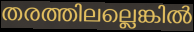
തരത്തിലല്ലെങ്കിൽ